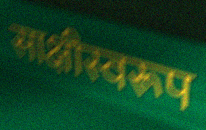
साक्षीस्वरूप